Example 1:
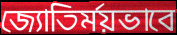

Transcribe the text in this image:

জ্যোতির্ময়ভাবে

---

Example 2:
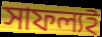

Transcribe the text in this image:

সাফল্যই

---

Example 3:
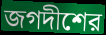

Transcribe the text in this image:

জগদীশের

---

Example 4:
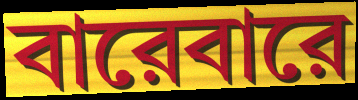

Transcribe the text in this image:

বারেবারে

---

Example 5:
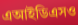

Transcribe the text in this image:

এআইডিএসও